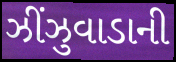
ઝીંઝુવાડાની